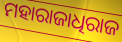
ମହାରାଜାଧିରାଜ